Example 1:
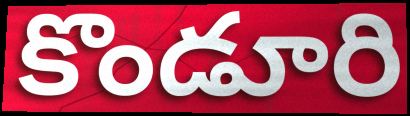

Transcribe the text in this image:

కొండూరి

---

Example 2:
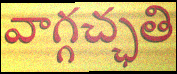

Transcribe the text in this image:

వాగ్గచ్ఛతి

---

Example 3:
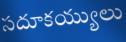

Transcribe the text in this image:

సదూకయ్యులు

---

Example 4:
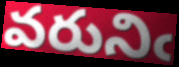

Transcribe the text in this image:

వరునిఁ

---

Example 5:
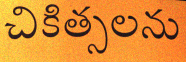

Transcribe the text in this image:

చికిత్సలను